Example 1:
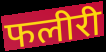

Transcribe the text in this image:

फलीरी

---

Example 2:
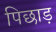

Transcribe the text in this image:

पिछाड़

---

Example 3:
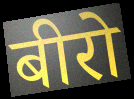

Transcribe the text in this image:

बीरो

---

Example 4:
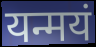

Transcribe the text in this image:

यन्मयं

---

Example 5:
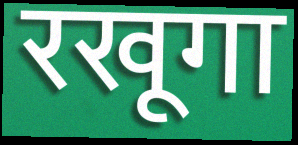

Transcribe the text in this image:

रखूगा